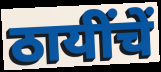
ठायींचें